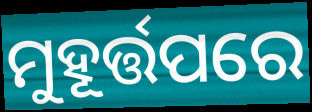
ମୁହୂର୍ତ୍ତପରେ